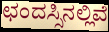
ಛಂದಸ್ಸಿನಲ್ಲಿವೆ